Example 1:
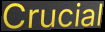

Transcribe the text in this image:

Crucial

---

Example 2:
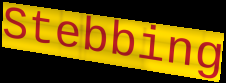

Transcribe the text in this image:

Stebbing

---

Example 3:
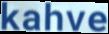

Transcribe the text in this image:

kahve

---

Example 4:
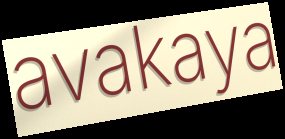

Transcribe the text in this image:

avakaya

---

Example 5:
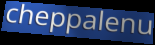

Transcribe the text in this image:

cheppalenu